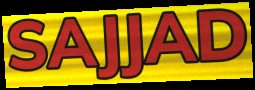
SAJJAD